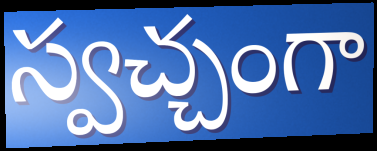
స్వచ్చంగా